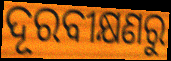
ଦୂରବୀକ୍ଷଣରୁ